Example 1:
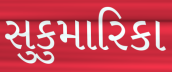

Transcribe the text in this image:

સુકુમારિકા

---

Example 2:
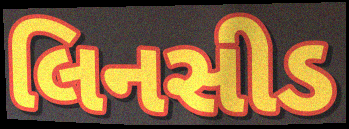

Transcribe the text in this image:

લિનસીડ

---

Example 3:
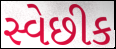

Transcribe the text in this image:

સ્વેછીક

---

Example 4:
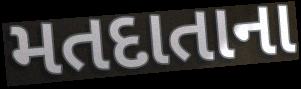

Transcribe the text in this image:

મતદાતાના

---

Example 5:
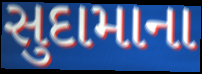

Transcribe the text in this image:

સુદામાના